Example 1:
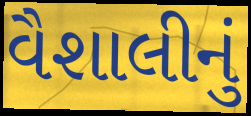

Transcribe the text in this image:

વૈશાલીનું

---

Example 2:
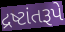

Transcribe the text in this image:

દ્રષ્ટાંતરૂપે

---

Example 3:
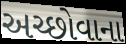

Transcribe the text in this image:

અચ્છોવાના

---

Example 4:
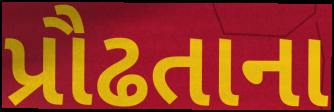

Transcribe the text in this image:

પ્રૌઢતાના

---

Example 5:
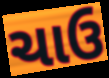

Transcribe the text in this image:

ચાઉ